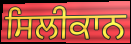
ਸਿਲੀਕਾਨ